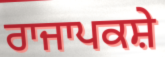
ਰਾਜਾਪਕਸ਼ੇ